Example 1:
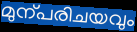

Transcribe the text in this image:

മുന്പരിചയവും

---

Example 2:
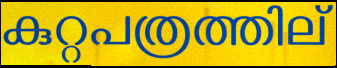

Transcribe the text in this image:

കുറ്റപത്രത്തില്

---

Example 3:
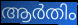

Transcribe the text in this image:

ആർതിം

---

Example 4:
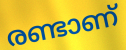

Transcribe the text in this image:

രണ്ടാണ്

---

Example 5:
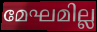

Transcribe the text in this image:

മേഘമില്ല